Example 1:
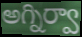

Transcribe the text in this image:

అగ్నిర్వా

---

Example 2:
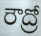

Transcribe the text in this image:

రౌద్రో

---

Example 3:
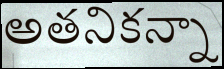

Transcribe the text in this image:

అతనికన్నా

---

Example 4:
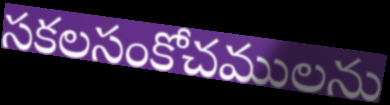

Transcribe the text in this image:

సకలసంకోచములను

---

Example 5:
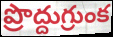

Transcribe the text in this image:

ప్రొద్దుగ్రుంక